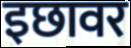
इछावर